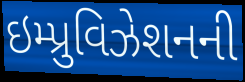
ઇમ્પ્રુવિઝેશનની